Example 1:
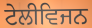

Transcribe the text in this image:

ਟੇਲੀਵਿਜਨ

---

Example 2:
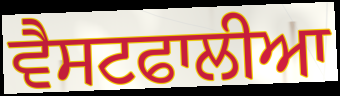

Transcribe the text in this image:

ਵੈਸਟਫਾਲੀਆ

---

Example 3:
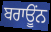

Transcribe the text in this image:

ਬਰਾਊਂਨ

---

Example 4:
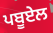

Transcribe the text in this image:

ਪਬੂਏਲ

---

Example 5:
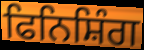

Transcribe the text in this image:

ਫਿਨਿਸ਼ਿੰਗ